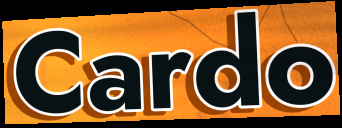
Cardo